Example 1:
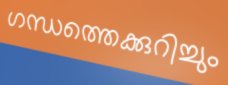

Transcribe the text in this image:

ഗന്ധത്തെക്കുറിച്ചും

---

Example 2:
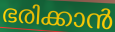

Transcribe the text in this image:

ഭരിക്കാൻ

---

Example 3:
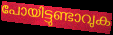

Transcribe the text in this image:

പോയിട്ടുണ്ടാവുക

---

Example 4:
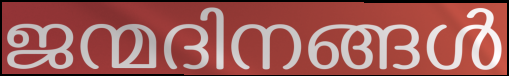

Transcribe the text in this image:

ജന്മദിനങ്ങൾ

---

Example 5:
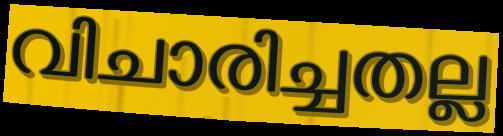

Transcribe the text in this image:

വിചാരിച്ചതല്ല